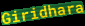
Giridhara